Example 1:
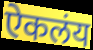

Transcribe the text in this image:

ऐकलंय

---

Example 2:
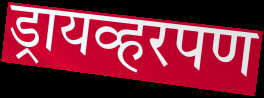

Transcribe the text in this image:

ड्रायव्हरपण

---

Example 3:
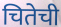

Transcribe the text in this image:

चितेची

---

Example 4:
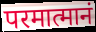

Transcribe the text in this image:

परमात्मानं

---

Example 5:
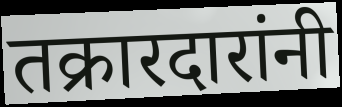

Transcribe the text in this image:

तक्रारदारांनी